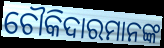
ଚୌକିଦାରମାନଙ୍କ